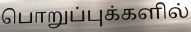
பொறுப்புக்களில்